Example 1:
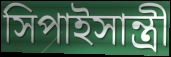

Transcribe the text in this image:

সিপাইসান্ত্রী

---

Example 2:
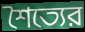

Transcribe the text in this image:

শৈত্যের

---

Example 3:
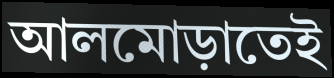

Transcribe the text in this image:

আলমোড়াতেই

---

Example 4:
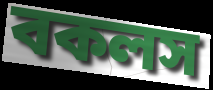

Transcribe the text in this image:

বকলস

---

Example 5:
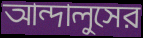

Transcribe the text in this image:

আন্দালুসের